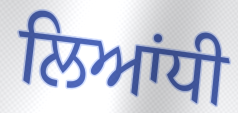
ਲਿਆਂਧੀ